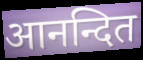
आनन्दित